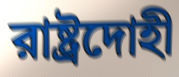
রাষ্ট্রদোহী